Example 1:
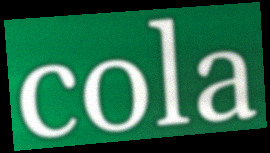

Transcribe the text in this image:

cola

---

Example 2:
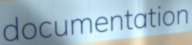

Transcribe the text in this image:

documentation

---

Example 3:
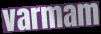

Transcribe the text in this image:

varmam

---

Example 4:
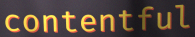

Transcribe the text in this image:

contentful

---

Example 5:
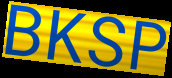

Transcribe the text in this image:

BKSP